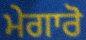
ਮੇਗਾਰੋ